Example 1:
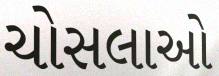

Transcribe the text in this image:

ચોસલાઓ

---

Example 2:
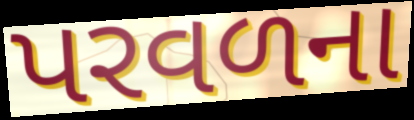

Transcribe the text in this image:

પરવળના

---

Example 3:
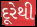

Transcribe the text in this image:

દૂરેથી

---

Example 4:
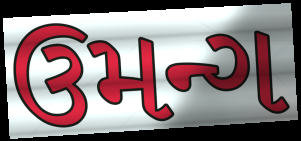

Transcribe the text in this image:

ઉમન્ગ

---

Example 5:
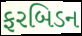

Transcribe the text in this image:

ફરબિડન